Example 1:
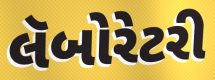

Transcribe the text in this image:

લૅબોરેટરી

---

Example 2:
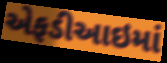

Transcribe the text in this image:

એફડીઆઇમાં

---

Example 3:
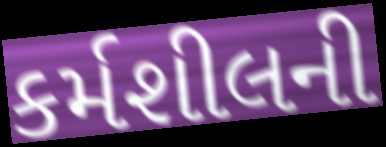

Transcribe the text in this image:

કર્મશીલની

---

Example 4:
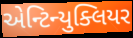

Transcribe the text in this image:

એન્ટિન્યુક્લિયર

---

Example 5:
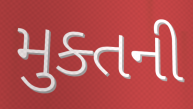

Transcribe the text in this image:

મુક્તની